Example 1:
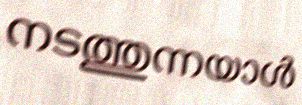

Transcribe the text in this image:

നടത്തുന്നയാൾ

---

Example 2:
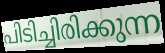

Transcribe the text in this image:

പിടിച്ചിരിക്കുന്ന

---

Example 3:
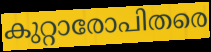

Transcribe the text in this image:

കുറ്റാരോപിതരെ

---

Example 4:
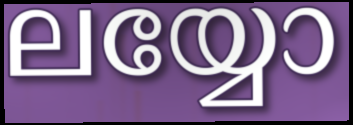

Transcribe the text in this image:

ലയ്യോ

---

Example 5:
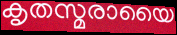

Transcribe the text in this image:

കൃതസ്മരായൈ